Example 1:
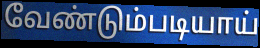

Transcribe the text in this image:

வேண்டும்படியாய்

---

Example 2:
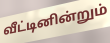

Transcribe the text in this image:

வீட்டினின்றும்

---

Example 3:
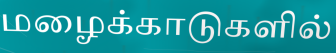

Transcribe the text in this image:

மழைக்காடுகளில்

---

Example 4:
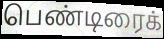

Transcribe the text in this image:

பெண்டிரைக்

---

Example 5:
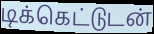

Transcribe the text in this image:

டிக்கெட்டுடன்